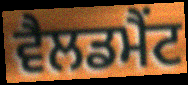
ਵੈਲਡਮੈਂਟ